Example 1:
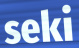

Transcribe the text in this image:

seki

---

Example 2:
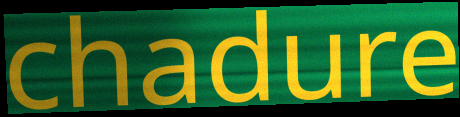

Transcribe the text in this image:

chadure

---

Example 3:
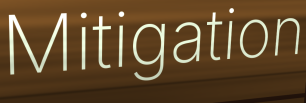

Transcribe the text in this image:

Mitigation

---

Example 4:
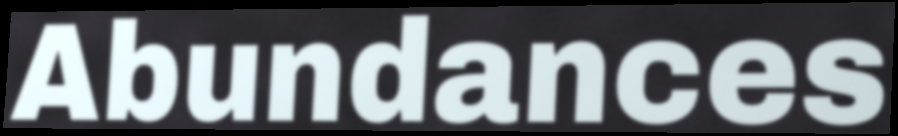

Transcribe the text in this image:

Abundances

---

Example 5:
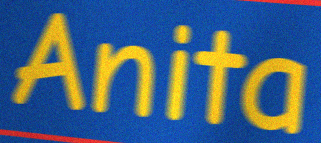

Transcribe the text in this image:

Anita